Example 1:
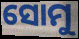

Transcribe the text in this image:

ସୋମୁ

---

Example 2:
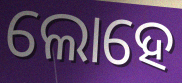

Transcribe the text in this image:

ଲୋହେ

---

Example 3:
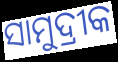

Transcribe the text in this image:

ସାମୁଦ୍ରୀକ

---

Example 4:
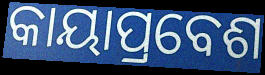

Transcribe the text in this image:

କାୟାପ୍ରବେଶ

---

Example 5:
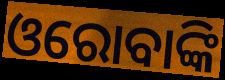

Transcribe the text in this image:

ଓରୋବାଙ୍କି